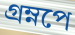
গ্রম্নপে